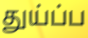
துய்ப்ப